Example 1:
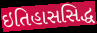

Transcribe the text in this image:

ઇતિહાસસિદ્ધ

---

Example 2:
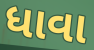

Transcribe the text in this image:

ધાવા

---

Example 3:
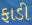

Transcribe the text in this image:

ફાડી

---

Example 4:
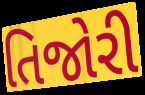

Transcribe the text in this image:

તિજોરી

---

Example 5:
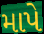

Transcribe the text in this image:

માપે